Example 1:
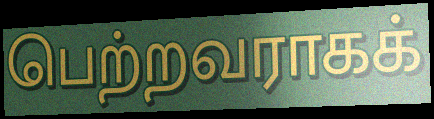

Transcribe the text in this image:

பெற்றவராகக்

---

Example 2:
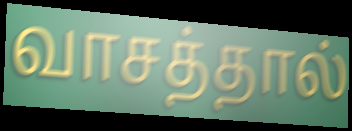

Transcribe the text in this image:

வாசத்தால்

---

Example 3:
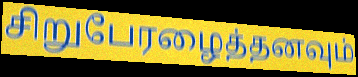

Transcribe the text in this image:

சிறுபேரழைத்தனவும்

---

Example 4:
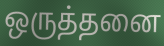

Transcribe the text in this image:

ஒருத்தனை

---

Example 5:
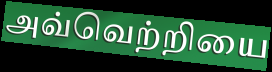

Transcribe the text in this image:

அவ்வெற்றியை